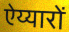
ऐय्यारों